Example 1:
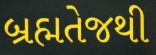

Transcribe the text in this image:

બ્રહ્મતેજથી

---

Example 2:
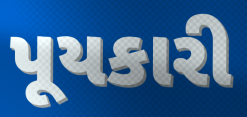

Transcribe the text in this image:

પૂયકારી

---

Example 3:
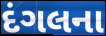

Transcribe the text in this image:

દંગલના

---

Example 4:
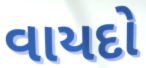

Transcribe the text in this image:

વાયદો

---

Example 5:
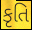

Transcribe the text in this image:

કૃતિ